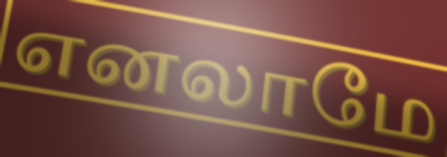
எனலாமே